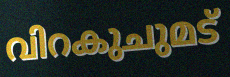
വിറകുചുമട്